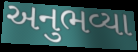
અનુભવ્યા